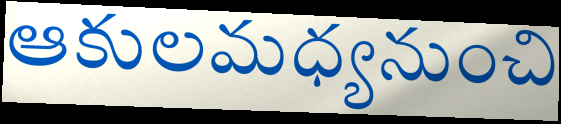
ఆకులమధ్యనుంచి